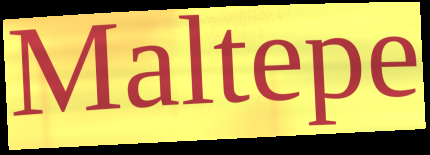
Maltepe